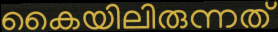
കൈയിലിരുന്നത്